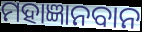
ମହାଜ୍ଞାନବାନ